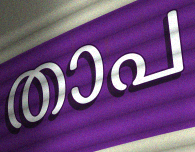
താപ